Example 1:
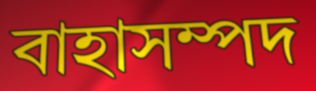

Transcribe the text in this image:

বাহাসম্পদ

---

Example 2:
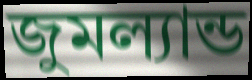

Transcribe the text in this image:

জুমল্যান্ড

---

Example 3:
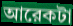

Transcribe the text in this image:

আরেকটা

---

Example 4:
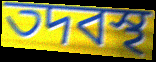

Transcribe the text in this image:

তদবস্থ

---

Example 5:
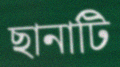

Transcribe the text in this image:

ছানাটি